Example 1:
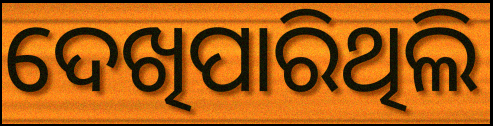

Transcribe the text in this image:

ଦେଖିପାରିଥିଲି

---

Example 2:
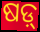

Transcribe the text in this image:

ଷଡ଼୍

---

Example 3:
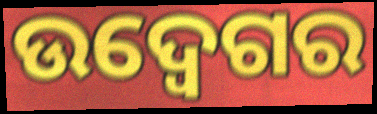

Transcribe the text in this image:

ଉଦ୍ବେଗର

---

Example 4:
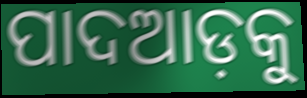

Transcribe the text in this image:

ପାଦଆଡ଼କୁ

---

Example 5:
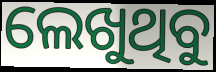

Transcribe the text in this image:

ଲେଖୁଥିବୁ